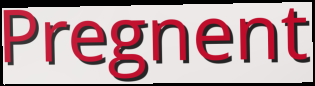
Pregnent